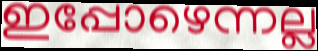
ഇപ്പോഴെന്നല്ല